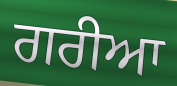
ਗਰੀਆ